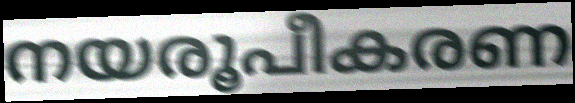
നയരൂപീകരണ